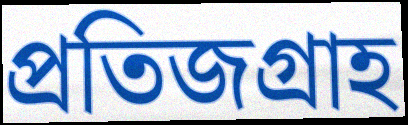
প্রতিজগ্রাহ